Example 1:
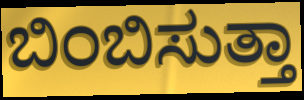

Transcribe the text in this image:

ಬಿಂಬಿಸುತ್ತಾ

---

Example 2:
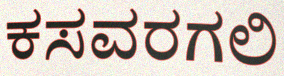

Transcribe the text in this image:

ಕಸವರಗಲಿ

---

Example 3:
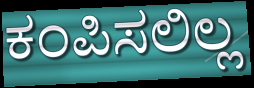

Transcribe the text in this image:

ಕಂಪಿಸಲಿಲ್ಲ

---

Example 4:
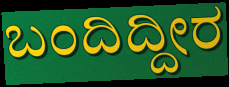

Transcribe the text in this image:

ಬಂದಿದ್ದೀರ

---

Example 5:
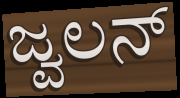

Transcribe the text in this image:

ಜ್ವಲನ್